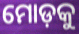
ମୋଡ଼କୁ